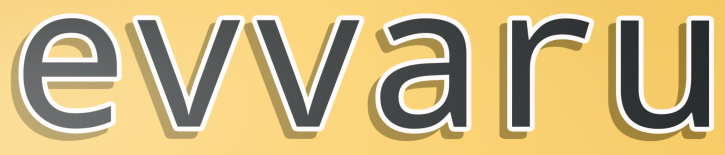
evvaru